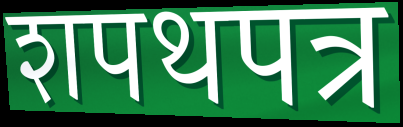
शपथपत्र